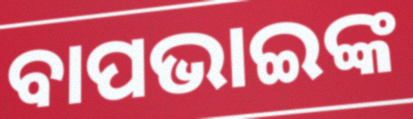
ବାପଭାଇଙ୍କ